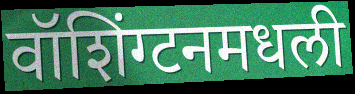
वॉशिंग्टनमधली